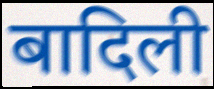
बादिली